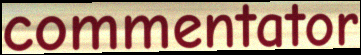
commentator